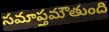
సమాప్తమౌతుంది